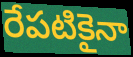
రేపటికైనా